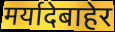
मर्यादेबाहेर